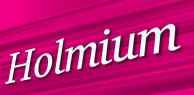
Holmium